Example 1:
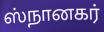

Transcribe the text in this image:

ஸ்நானகர்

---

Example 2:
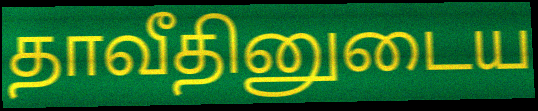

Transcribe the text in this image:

தாவீதினுடைய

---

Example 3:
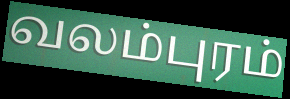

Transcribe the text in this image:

வலம்புரம்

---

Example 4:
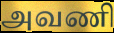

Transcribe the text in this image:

அவணி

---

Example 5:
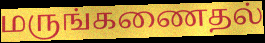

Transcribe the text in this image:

மருங்கணைதல்